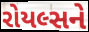
રોયલ્સને